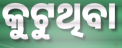
କୁଟୁଥିବା